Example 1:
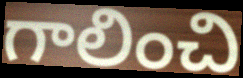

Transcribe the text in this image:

గాలించి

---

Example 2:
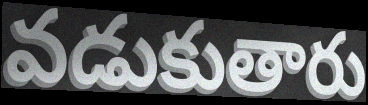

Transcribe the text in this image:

వడుకుతారు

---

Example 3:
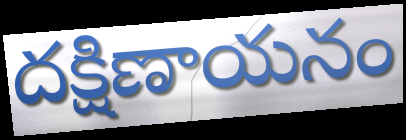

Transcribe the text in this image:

దక్షిణాయనం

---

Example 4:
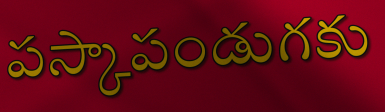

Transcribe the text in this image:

పస్కాపండుగకు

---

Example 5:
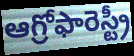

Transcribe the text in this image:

ఆగ్రోఫారెస్ట్రీ